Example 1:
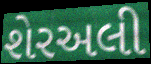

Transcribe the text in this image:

શેરઅલી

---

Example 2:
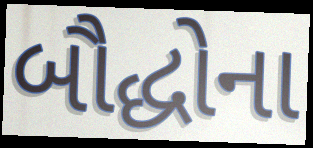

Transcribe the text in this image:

બૌદ્ધોના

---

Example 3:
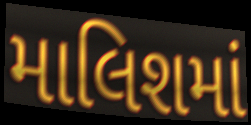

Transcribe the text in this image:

માલિશમાં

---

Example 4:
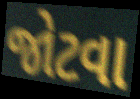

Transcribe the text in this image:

જોટવા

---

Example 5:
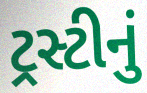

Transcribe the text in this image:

ટ્રસ્ટીનું